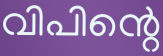
വിപിന്റെ